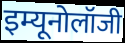
इम्यूनोलॉजी